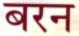
बरन